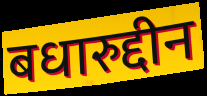
बधारुद्दीन